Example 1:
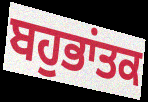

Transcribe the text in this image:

ਬਹੁਭਾਂਤਕ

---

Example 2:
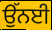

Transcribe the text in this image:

ਉੱਨਈ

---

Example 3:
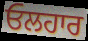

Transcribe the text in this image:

ਓਲਹਾਰ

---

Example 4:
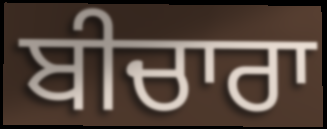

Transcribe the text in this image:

ਬੀਚਾਰਾ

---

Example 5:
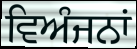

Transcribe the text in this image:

ਵਿਅੰਜਨਾਂ